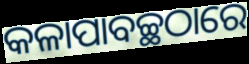
କଳାପାବଚ୍ଛଠାରେ